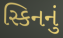
સ્કિનનું